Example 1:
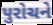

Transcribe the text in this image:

પુરોચને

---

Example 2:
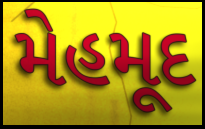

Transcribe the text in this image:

મેહમૂદ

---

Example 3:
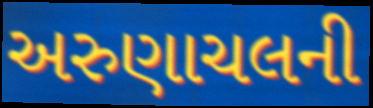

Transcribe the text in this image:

અરુણાચલની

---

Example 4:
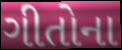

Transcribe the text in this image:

ગીતોના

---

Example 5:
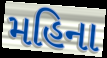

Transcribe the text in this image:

મહિના